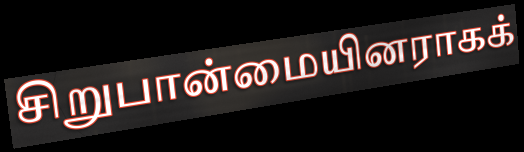
சிறுபான்மையினராகக்